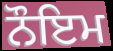
ਨੌਇਮ